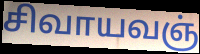
சிவாயவஞ்